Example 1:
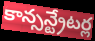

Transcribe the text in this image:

కాన్సన్ట్రేటర్ల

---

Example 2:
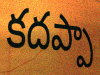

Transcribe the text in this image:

కదప్పా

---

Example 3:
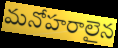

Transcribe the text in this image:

మనోహరాలైన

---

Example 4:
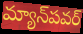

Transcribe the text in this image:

మ్యాన్‌పవర్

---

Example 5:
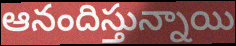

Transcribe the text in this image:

ఆనందిస్తున్నాయి